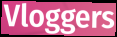
Vloggers